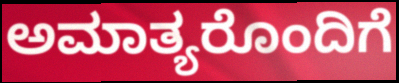
ಅಮಾತ್ಯರೊಂದಿಗೆ